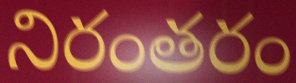
నిరంతరం